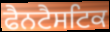
ਫੈਨਟੈਸਟਿਕ